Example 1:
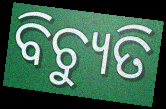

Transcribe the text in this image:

ବିଚ୍ୟୁତି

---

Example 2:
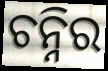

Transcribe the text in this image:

ଚନ୍ନିର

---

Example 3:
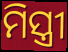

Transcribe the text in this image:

ମିସ୍ତ୍ରୀ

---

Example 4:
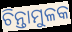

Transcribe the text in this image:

ଚିନ୍ତାମୁଳକ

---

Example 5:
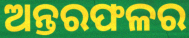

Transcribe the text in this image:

ଅନ୍ତରଫଳର